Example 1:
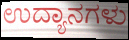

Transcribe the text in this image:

ಉದ್ಯಾನಗಳು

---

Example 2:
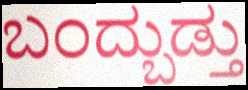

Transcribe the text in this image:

ಬಂದ್ಬುಡ್ತು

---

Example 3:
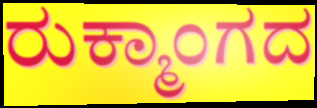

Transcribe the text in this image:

ರುಕ್ಮಾಂಗದ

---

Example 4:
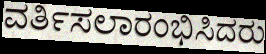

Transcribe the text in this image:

ವರ್ತಿಸಲಾರಂಭಿಸಿದರು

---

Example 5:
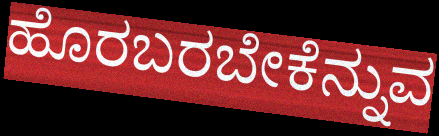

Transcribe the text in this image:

ಹೊರಬರಬೇಕೆನ್ನುವ